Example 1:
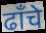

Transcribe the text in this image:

ढाँचे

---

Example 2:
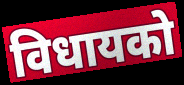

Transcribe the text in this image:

विधायको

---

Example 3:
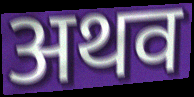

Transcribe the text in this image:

अथव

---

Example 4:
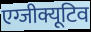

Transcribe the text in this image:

एग्जीक्यूटिव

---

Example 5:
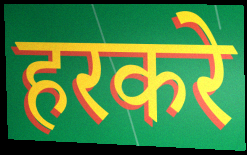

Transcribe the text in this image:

हरकरे